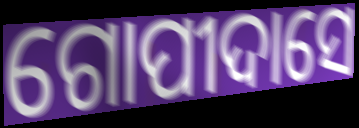
ଗୋପୀଦାସେ